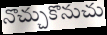
నొచ్చుకొనుచు